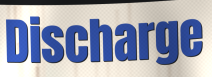
Discharge